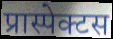
प्रास्पेक्टस